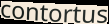
contortus